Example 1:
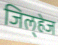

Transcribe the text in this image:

जिल्हेज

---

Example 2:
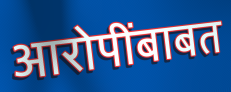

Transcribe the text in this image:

आरोपींबाबत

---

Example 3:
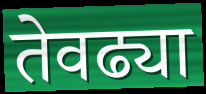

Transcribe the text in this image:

तेवढ्या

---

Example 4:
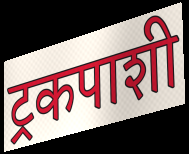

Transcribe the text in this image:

ट्रकपाशी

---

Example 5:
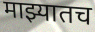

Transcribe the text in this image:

माझ्यातच